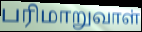
பரிமாறுவாள்